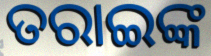
ତରାଇଙ୍କ